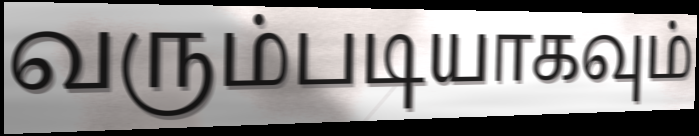
வரும்படியாகவும்